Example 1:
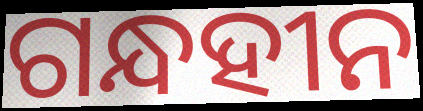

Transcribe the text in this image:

ଗନ୍ଧହୀନ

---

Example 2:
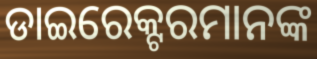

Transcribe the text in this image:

ଡାଇରେକ୍ଟରମାନଙ୍କ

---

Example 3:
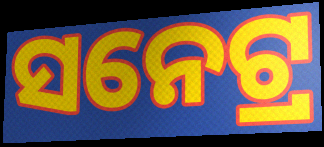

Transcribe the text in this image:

ସନେଟ୍ର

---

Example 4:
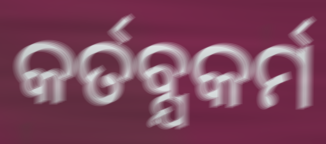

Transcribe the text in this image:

କର୍ତବ୍ଯକର୍ମ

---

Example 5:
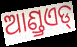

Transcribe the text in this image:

ଆଣ୍ଡ୍ରଏଡ୍